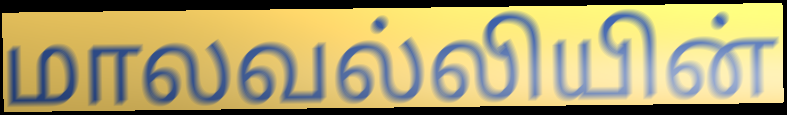
மாலவல்லியின்